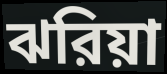
ঝরিয়া